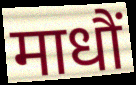
माधौं